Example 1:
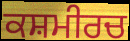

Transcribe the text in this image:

ਕਸ਼ਮੀਰਚ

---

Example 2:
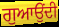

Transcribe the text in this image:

ਗੁਆਉਂਦੀ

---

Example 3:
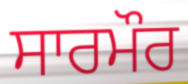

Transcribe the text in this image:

ਸਾਰਮੌਰ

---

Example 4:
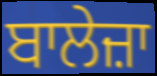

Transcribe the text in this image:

ਬਾਲੇਜ਼ਾ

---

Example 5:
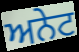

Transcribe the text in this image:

ਅਨੇਟ